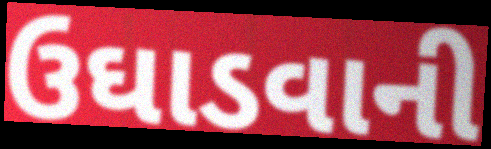
ઉઘાડવાની